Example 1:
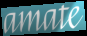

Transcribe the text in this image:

amate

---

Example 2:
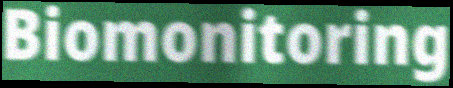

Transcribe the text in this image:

Biomonitoring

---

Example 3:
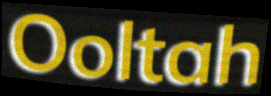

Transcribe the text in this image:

Ooltah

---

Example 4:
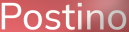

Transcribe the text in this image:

Postino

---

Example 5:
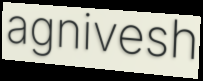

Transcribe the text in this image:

agnivesh